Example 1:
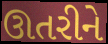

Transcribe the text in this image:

ઊતરીને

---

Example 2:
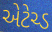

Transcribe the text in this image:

એટેચ્ડ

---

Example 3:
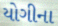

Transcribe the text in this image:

યોગીના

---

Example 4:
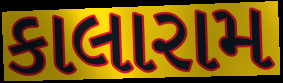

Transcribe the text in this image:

કાલારામ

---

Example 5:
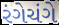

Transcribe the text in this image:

રંગેચંગે